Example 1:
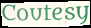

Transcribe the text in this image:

Coutesy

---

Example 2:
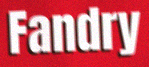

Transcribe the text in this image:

Fandry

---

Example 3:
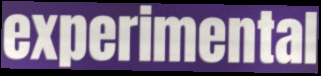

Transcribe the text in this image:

experimental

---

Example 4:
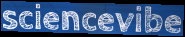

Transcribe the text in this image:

sciencevibe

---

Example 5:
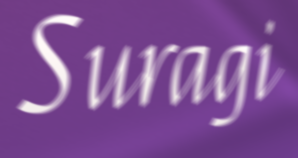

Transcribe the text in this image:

Suragi